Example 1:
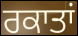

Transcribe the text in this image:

ਰਕਾਤਾਂ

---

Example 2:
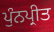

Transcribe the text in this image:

ਪੁੰਨਪ੍ਰੀਤ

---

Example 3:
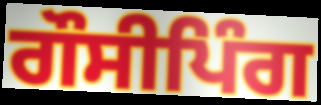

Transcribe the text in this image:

ਗੌਸੀਪਿੰਗ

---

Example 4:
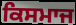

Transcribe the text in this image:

ਕਿਸਮਾਜ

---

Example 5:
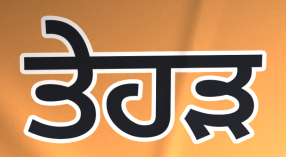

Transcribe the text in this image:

ਤੇਹੜ